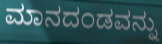
ಮಾನದಂಡವನ್ನು